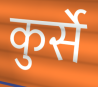
कुर्से